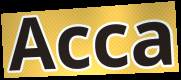
Acca